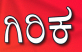
ಗಿರಿಕ